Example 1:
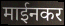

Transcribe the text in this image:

माईनकर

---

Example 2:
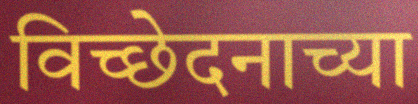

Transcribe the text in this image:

विच्छेदनाच्या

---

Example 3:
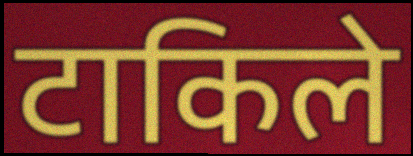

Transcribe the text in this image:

टाकिले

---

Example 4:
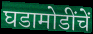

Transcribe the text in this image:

घडामोडींचें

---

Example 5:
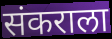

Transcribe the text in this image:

संकराला